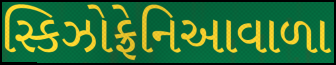
સ્કિઝોફ્રેનિઆવાળા